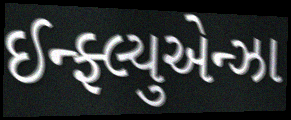
ઈન્ફ્લ્યુએન્ઝા